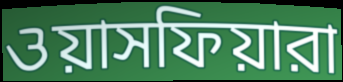
ওয়াসফিয়ারা